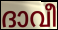
ദാവീ